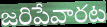
జరిపేవారట